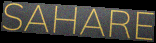
SAHARE